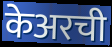
केअरची